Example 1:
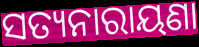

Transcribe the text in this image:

ସତ୍ୟନାରାୟଣା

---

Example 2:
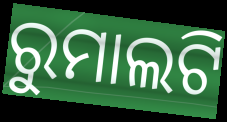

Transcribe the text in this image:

ରୁମାଲଟି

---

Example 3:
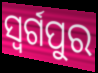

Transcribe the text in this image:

ସ୍ଵର୍ଗପୁର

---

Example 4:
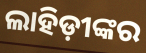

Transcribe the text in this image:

ଲାହିଡ଼ୀଙ୍କର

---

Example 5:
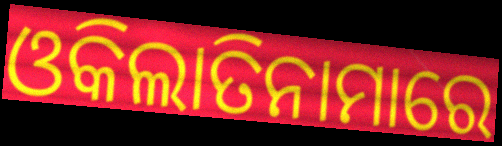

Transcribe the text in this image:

ଓକିଲାତିନାମାରେ